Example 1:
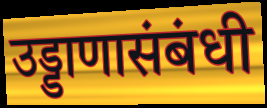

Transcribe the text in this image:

उड्डाणासंबंधी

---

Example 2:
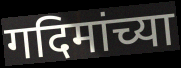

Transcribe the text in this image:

गदिमांच्या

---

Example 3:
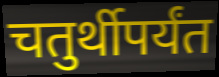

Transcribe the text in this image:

चतुर्थीपर्यंत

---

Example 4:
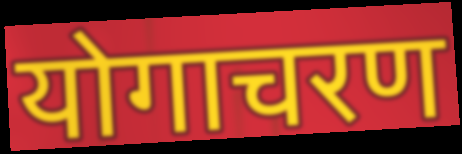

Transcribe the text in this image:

योगाचरण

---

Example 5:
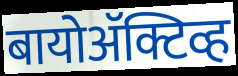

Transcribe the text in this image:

बायोॲक्टिव्ह